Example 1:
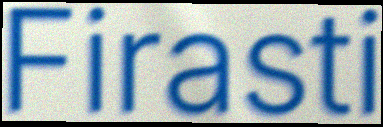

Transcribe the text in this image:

Firasti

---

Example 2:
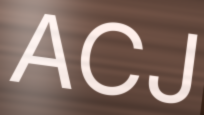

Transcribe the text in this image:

ACJ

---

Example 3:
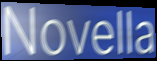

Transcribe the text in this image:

Novella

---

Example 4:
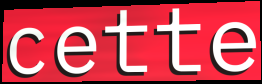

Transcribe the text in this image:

cette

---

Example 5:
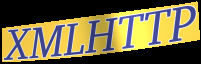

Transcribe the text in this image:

XMLHTTP